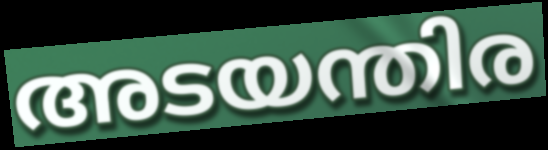
അടയന്തിര